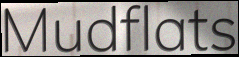
Mudflats